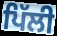
ਪਿੱਲੀ